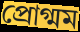
প্রোগ্মম